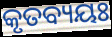
କୃତବ୍ୟୟଃ